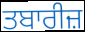
ਤਬਾਰੀਜ਼